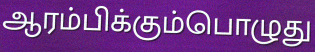
ஆரம்பிக்கும்பொழுது